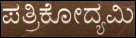
ಪತ್ರಿಕೋದ್ಯಮಿ